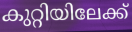
കുറ്റിയിലേക്ക്